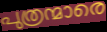
പുത്രന്മാരെ